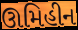
ઊમિહીન